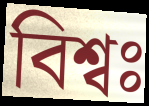
বিশ্বঃ